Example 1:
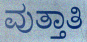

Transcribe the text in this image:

ವುತ್ತಾತಿ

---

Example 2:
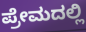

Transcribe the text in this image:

ಪ್ರೇಮದಲ್ಲಿ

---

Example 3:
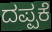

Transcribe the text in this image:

ದಪ್ಪಕೆ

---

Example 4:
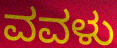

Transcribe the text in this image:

ವವಳು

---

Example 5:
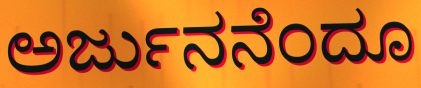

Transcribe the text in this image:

ಅರ್ಜುನನೆಂದೂ